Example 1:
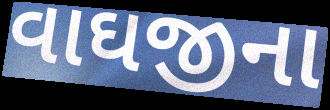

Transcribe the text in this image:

વાઘજીના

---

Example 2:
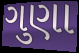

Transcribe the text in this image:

ગુણા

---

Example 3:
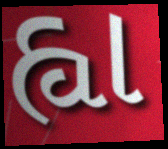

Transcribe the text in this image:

હ્વા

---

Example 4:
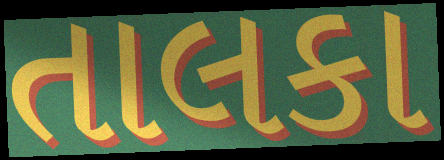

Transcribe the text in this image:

તાલકા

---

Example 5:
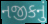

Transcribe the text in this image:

નજીકનું